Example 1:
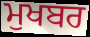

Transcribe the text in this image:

ਮੁਖਬਰ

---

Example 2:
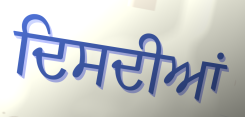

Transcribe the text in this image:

ਦਿਸਦੀਆਂ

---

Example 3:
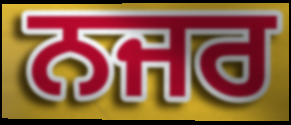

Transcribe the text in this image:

ਨਜਰ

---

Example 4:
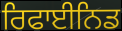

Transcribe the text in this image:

ਰਿਫਾਈਨਿਡ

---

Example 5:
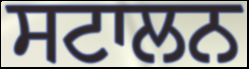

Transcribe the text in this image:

ਸਟਾਲਨ